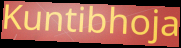
Kuntibhoja